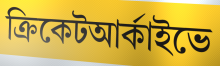
ক্রিকেটআর্কাইভে